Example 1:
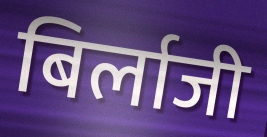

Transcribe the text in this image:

बिर्लाजी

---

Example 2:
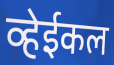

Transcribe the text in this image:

व्हेईकल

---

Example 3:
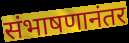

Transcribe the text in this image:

संभाषणानंतर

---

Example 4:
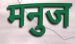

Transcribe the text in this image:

मनुज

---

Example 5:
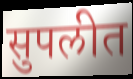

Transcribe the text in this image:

सुपलीत